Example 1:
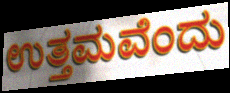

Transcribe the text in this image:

ಉತ್ತಮವೆಂದು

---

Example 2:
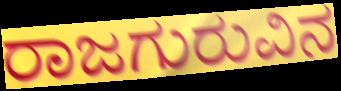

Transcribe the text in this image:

ರಾಜಗುರುವಿನ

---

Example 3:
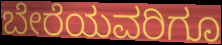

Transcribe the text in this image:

ಬೇರೆಯವರಿಗೂ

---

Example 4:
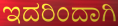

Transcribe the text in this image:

ಇದರಿಂದಾಗಿ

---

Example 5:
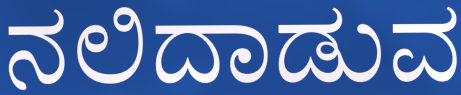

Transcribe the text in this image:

ನಲಿದಾಡುವ